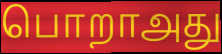
பொறாஅது